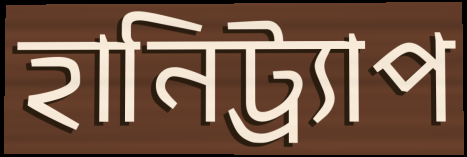
হানিট্র্যাপ